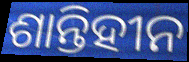
ଶାନ୍ତିହୀନ